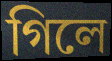
গিলে